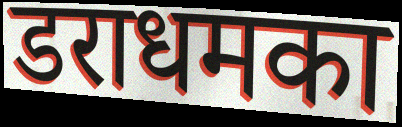
डराधमका